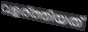
വളര്ത്തിയത്